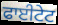
ਫਾਈਟੇਟ